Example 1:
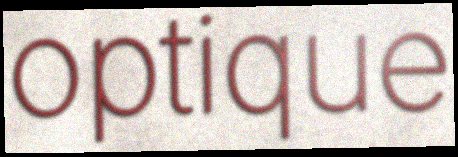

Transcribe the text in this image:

optique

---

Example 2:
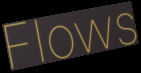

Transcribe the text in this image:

Flows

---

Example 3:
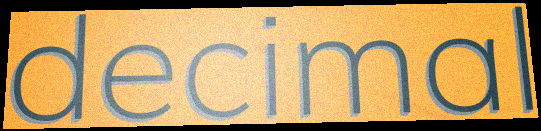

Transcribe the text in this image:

decimal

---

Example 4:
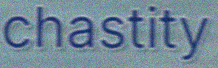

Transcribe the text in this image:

chastity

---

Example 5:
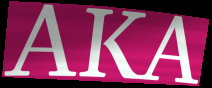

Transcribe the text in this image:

AKA